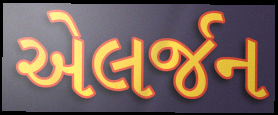
એલર્જન